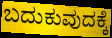
ಬದುಕುವುದಕ್ಕೆ